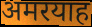
अमरयाह